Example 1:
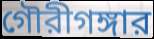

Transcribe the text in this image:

গৌরীগঙ্গার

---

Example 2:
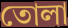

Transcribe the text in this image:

তোলা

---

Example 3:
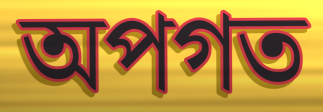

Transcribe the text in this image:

অপগত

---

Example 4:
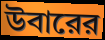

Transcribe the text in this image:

উবারের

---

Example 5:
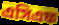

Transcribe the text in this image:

এসিএফ